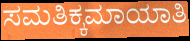
ಸಮತಿಕ್ಕಮಾಯಾತಿ